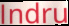
Indru